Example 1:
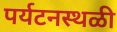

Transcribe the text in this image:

पर्यटनस्थळी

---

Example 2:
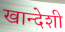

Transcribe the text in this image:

खान्देशी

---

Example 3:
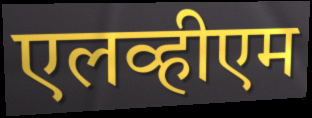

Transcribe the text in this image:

एलव्हीएम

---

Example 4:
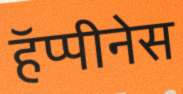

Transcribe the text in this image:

हॅप्पीनेस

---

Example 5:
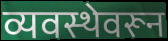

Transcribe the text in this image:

व्यवस्थेवरून